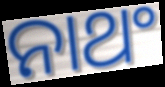
ନାଥଂ